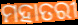
ମହାତରୀ